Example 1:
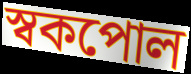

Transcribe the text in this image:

স্বকপোল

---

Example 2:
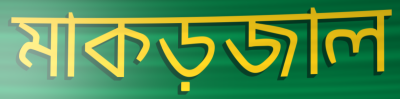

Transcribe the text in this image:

মাকড়জাল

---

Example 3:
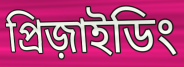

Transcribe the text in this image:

প্রিজ়াইডিং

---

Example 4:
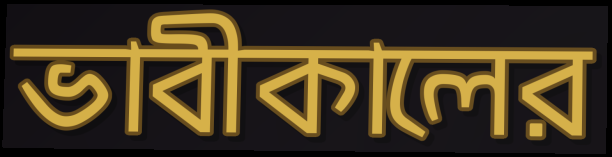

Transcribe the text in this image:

ভাবীকালের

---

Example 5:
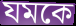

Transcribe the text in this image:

যমকে